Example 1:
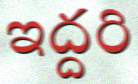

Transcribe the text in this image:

ఇద్దరి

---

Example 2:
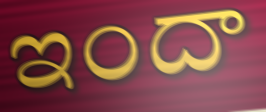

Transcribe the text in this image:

ఇందా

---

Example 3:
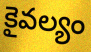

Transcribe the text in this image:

కైవల్యం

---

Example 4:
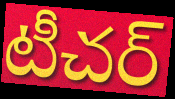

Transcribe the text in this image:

టీచర్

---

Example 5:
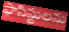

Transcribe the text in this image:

ఫాసిస్టులను